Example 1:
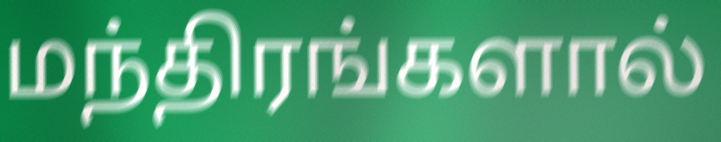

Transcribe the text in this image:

மந்திரங்களால்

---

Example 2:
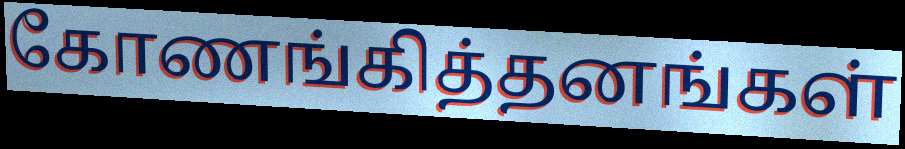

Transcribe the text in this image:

கோணங்கித்தனங்கள்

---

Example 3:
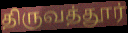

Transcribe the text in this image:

திருவத்தூர்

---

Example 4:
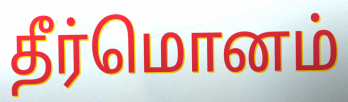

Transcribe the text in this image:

தீர்மொனம்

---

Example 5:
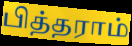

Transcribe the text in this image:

பித்தராம்